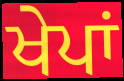
ਖੇਪਾਂ